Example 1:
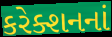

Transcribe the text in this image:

કરેક્શનનાં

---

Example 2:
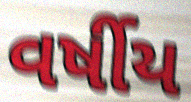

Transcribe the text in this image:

વર્ષીય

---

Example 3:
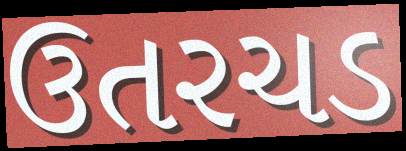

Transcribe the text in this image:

ઉતરચડ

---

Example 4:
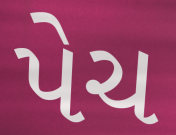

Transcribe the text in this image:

પેચ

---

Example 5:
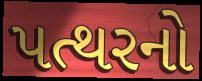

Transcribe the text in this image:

પત્થરનો